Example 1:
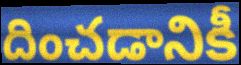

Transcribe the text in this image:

దించడానికీ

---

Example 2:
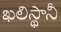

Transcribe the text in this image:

ఖలిస్థానీ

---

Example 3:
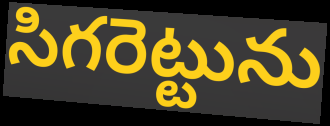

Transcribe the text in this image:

సిగరెట్టును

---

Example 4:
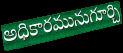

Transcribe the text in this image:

అధికారమునుగూర్చి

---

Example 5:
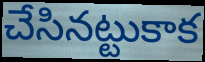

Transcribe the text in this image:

చేసినట్టుకాక